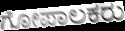
ಗೋಪಾಲಕರು